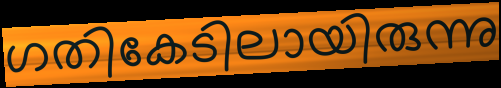
ഗതികേടിലായിരുന്നു